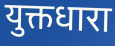
युक्तधारा